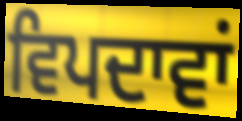
ਵਿਪਦਾਵਾਂ